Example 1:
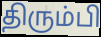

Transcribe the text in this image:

திரும்பி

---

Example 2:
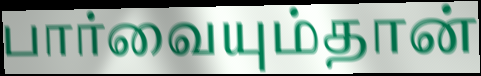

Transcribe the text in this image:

பார்வையும்தான்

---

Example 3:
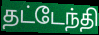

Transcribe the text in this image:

தட்டேந்தி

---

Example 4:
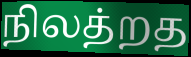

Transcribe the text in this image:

நிலத்றத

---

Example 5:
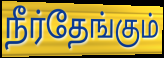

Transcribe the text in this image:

நீர்தேங்கும்